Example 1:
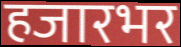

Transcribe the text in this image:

हजारभर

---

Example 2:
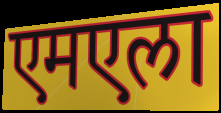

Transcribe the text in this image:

एमएला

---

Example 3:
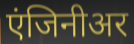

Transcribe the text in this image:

एंजिनीअर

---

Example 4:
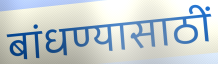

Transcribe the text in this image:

बांधण्यासाठीं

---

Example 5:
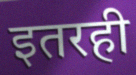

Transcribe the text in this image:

इतरही